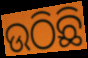
ଉଠିଛି